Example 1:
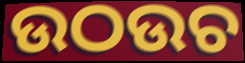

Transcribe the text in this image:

ଉଠଉଚ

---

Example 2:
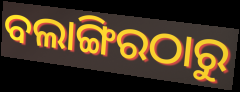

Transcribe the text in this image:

ବଲାଙ୍ଗିରଠାରୁ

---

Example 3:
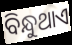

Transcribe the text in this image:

ବିନ୍ଧୁଥାଏ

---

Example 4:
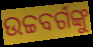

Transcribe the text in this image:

ଉଚ୍ଚବର୍ଗଙ୍କୁ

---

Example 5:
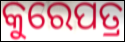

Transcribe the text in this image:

କୁରେପତ୍ର